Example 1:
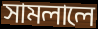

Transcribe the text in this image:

সামলালে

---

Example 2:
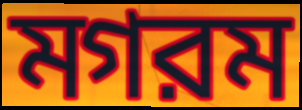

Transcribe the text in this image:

মগরম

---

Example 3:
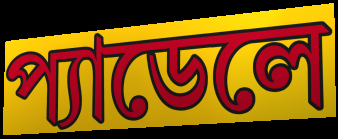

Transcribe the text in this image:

প্যাডেলে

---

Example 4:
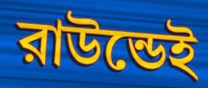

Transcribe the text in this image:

রাউন্ডেই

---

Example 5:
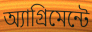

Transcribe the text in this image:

অ্যাগ্রিমেন্টে